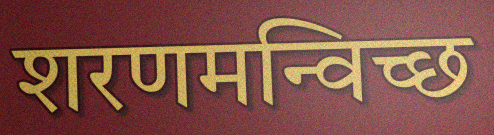
शरणमन्विच्छ